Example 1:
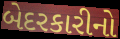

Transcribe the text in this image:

બેદરકારીનો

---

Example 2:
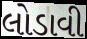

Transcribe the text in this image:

લોડાવી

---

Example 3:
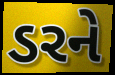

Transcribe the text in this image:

ડરને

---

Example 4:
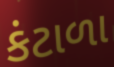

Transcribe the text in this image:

કંટાળા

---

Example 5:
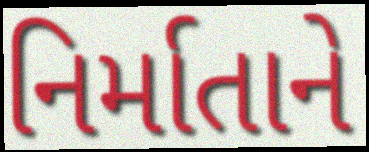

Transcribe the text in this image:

નિર્માતાને